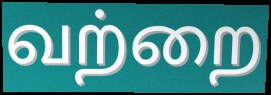
வற்றை